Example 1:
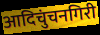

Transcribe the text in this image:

आदिचुंचनगिरी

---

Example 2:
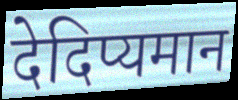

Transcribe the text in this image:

देदिप्यमान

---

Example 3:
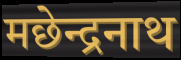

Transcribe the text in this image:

मछेन्द्रनाथ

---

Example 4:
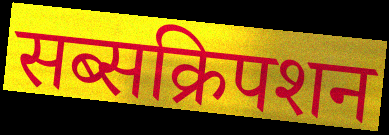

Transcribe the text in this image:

सब्सक्रिपशन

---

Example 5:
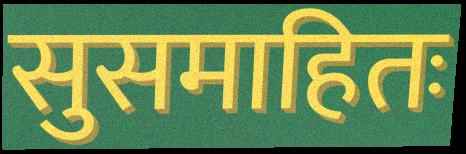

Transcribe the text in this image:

सुसमाहितः